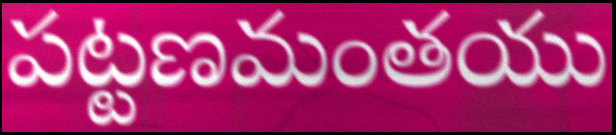
పట్టణమంతయు